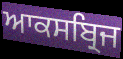
ਆਕਸਬ੍ਰਿਜ